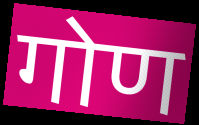
गोण